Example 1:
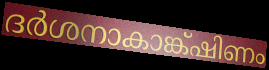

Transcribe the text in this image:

ദർശനാകാങ്ക്ഷിണം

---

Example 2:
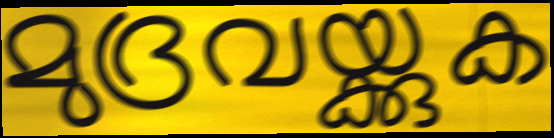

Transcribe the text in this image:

മുദ്രവയ്ക്കുക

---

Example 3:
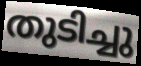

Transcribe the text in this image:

തുടിച്ചു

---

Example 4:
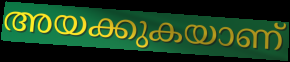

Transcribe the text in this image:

അയക്കുകയാണ്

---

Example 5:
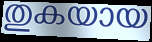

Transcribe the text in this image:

തുകയായ